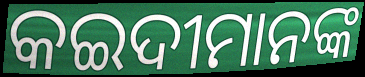
କଇଦୀମାନଙ୍କ